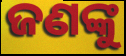
ଜଣଙ୍କୁ